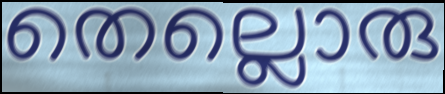
തെല്ലൊരു